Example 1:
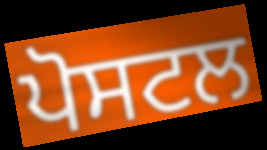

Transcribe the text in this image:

ਪੋਸਟਲ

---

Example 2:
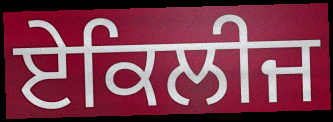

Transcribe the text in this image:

ਏਕਿਲੀਜ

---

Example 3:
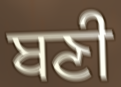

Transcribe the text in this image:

ਬਣੀ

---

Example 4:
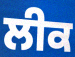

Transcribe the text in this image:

ਲੀਕ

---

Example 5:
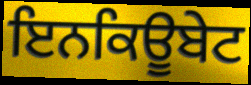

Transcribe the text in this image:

ਇਨਕਿਊਬੇਟ